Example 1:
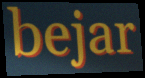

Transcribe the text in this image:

bejar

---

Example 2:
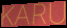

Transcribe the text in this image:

KARU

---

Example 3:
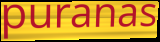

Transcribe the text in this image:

puranas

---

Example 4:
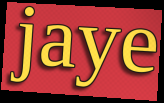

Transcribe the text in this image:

jaye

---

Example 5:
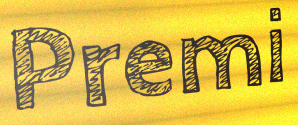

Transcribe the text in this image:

Premi